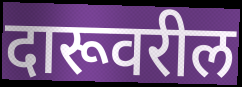
दारूवरील